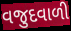
વજુદવાળી